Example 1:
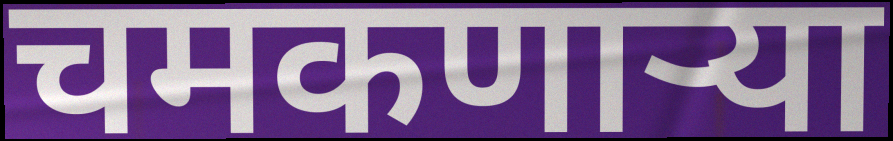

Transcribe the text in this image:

चमकणाऱ्या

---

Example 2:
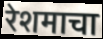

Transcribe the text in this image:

रेशमाचा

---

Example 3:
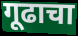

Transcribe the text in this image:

गूढाचा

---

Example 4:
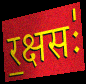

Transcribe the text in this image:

र॒क्षसः॑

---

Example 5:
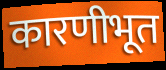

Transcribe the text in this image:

कारणीभूत